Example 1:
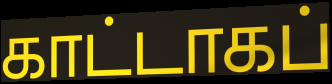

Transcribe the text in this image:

காட்டாகப்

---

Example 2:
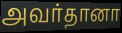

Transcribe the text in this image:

அவர்தானா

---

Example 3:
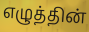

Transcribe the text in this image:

எழுத்தின்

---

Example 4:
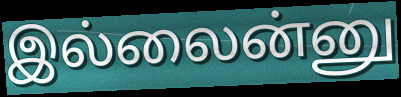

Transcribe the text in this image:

இல்லைன்னு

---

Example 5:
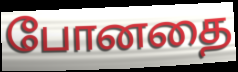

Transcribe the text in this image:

போனதை